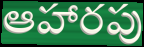
ఆహారపు